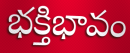
భక్తిభావం